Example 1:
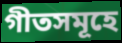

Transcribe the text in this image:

গীতসমূহে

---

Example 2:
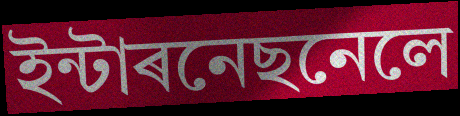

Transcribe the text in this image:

ইন্টাৰনেছনেলে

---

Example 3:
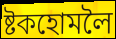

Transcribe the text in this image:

ষ্টকহোমলৈ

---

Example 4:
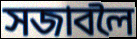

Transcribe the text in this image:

সজাবলৈ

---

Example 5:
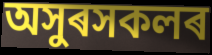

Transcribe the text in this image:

অসুৰসকলৰ